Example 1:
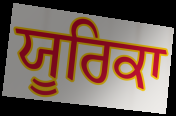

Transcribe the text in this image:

ਯੂਰਿਕਾ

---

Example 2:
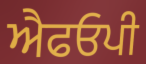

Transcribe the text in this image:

ਐਫਓਪੀ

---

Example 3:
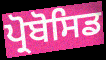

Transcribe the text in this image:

ਪ੍ਰੋਬੋਸਿਡ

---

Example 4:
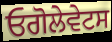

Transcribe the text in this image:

ਓਗੋਲੇਵੇਟਸ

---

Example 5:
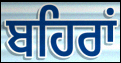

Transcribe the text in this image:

ਬਹਿਰਾਂ